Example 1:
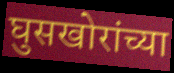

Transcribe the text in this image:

घुसखोरांच्या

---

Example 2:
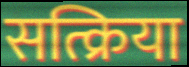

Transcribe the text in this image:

सत्क्रिया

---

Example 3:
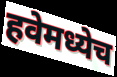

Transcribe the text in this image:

हवेमध्येच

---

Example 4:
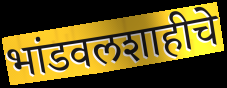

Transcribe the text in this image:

भांडवलशाहीचे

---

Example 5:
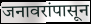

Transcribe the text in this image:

जनावरांपासून